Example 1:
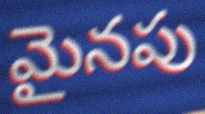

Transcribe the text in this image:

మైనపు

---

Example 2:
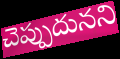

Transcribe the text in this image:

చెప్పుదునని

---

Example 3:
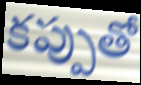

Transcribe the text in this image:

కప్పుతో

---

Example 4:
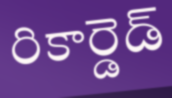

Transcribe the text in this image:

రికార్డెడ్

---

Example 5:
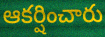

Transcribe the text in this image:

ఆకర్షించారు